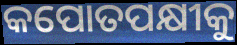
କପୋତପକ୍ଷୀକୁ